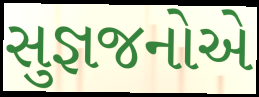
સુજ્ઞજનોએ